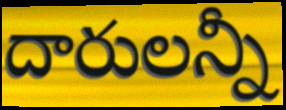
దారులన్నీ